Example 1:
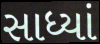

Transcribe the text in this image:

સાધ્યાં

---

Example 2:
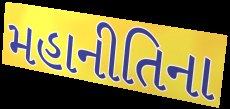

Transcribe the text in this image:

મહાનીતિના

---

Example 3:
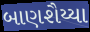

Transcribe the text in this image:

બાણશૈય્યા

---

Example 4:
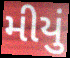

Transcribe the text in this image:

મીયું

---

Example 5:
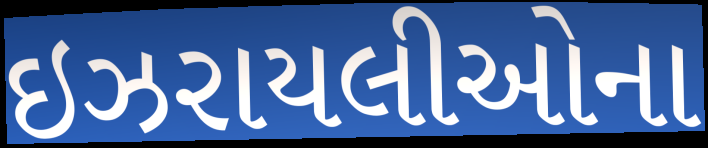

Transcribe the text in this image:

ઇઝરાયલીઓના